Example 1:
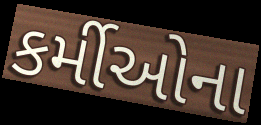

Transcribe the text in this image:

કર્મીઓના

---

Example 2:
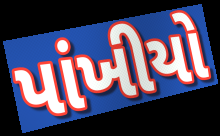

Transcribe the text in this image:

પાંખીયો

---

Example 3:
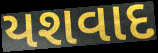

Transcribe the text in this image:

યશવાદ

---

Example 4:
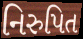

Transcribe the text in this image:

નિરુપિત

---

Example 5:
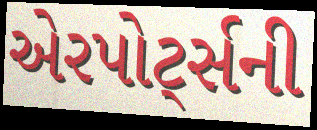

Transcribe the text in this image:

એરપોર્ટ્સની